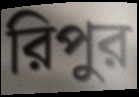
রিপুর